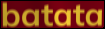
batata